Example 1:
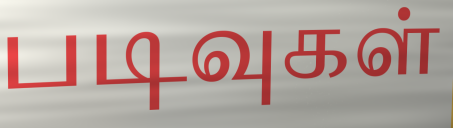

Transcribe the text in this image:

படிவுகள்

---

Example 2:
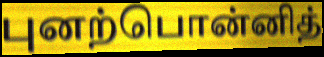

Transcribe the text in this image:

புனற்பொன்னித்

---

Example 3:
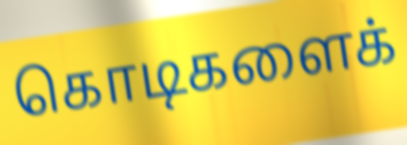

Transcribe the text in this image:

கொடிகளைக்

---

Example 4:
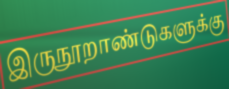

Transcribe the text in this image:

இருநூறாண்டுகளுக்கு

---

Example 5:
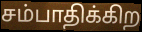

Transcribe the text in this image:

சம்பாதிக்கிற